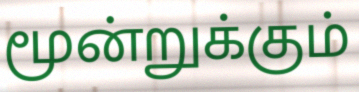
மூன்றுக்கும்